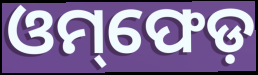
ଓମ୍‌ଫେଡ଼